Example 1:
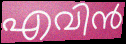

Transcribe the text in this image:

എവിൻ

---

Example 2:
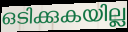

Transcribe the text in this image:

ഒടിക്കുകയില്ല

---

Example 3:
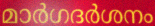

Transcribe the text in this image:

മാർഗദർശനം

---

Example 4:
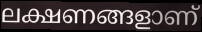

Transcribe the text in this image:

ലക്ഷണങ്ങളാണ്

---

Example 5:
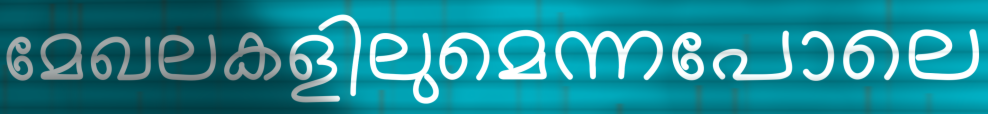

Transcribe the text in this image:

മേഖലകളിലുമെന്നപോലെ